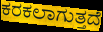
ಕರಕಲಾಗುತ್ತದೆ